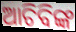
ଆଚିବିଙ୍କ